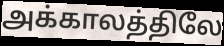
அக்காலத்திலே